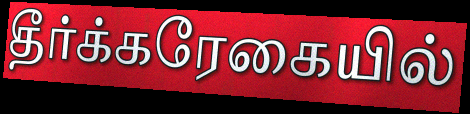
தீர்க்கரேகையில்